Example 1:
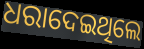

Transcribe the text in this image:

ଧରାଦେଇଥିଲେ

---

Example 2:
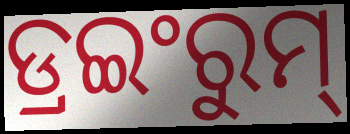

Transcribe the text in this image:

ଡ୍ରଇଂରୁମ୍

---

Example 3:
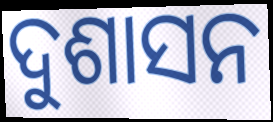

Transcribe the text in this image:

ଦୁଶାସନ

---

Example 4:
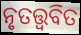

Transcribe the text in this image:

ନୃତତ୍ତ୍ୱବିତ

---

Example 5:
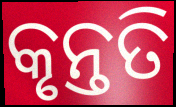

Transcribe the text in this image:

କୃନ୍ତତି